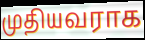
முதியவராக